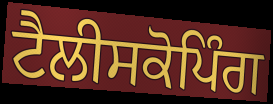
ਟੈਲੀਸਕੋਪਿੰਗ